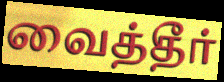
வைத்தீர்